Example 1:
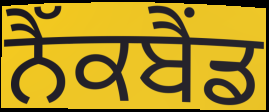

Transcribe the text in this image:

ਨੈੱਕਬੈਂਡ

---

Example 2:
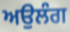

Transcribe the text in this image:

ਅਉਲੰਗ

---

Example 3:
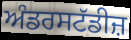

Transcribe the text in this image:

ਅੰਡਰਸਟੱਡੀਜ਼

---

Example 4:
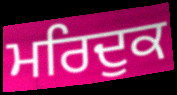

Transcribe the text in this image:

ਮਰਿਦੁਕ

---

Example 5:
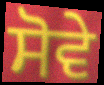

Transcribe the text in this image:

ਸੋਵੇ